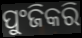
ପୁଂଜିକରି